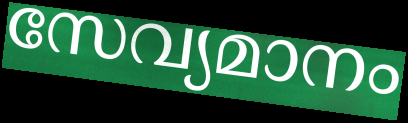
സേവ്യമാനം